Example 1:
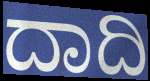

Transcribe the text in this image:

ದಾದಿ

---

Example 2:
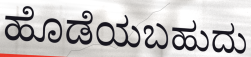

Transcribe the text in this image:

ಹೊಡೆಯಬಹುದು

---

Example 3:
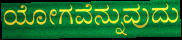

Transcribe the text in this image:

ಯೋಗವೆನ್ನುವುದು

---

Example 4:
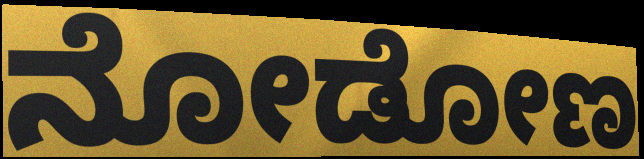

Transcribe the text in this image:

ನೋಡೋಣ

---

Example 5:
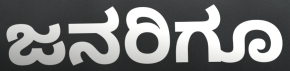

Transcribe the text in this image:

ಜನರಿಗೂ